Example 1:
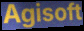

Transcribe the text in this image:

Agisoft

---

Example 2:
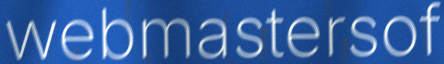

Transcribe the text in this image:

webmastersof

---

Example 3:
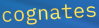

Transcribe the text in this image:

cognates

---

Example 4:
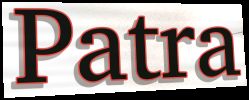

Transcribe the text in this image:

Patra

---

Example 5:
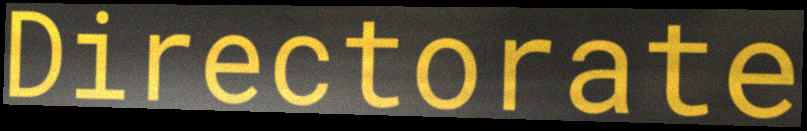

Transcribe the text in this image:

Directorate